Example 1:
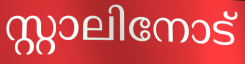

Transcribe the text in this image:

സ്റ്റാലിനോട്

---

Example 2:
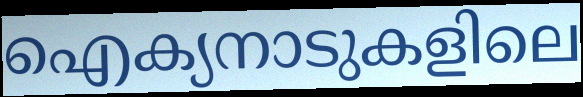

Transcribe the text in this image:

ഐക്യനാടുകളിലെ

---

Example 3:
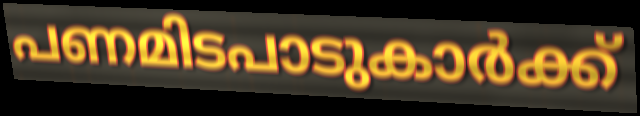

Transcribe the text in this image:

പണമിടപാടുകാർക്ക്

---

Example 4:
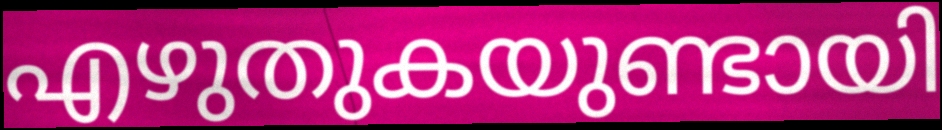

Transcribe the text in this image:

എഴുതുകയുണ്ടായി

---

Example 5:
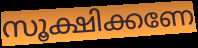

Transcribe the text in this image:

സൂക്ഷിക്കണേ